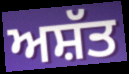
ਅਸ਼ੱਤ